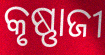
କୃଷ୍ଣାଜୀ